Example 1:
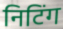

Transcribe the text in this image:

निटिंग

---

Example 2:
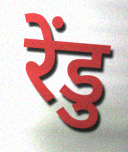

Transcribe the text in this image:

रेंडु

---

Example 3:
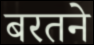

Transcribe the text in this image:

बरतने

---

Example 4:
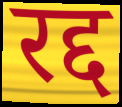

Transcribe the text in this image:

रद्द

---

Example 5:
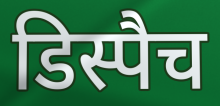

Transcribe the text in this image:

डिस्पैच